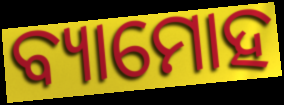
ବ୍ୟାମୋହ